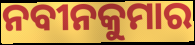
ନବୀନକୁମାର